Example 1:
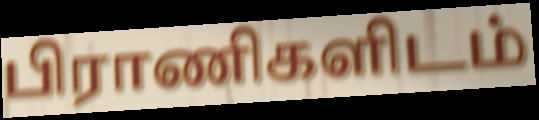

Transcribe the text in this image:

பிராணிகளிடம்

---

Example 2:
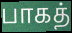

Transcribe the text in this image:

பாகத்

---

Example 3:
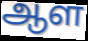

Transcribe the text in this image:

ஆள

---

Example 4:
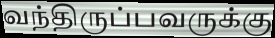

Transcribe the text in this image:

வந்திருப்பவருக்கு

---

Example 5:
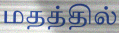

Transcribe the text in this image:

மதத்தில்